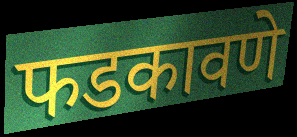
फडकावणे